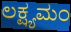
ಲಕ್ಷ್ಯಮಂ